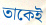
তাকেই